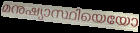
മനുഷ്യാസ്ഥിയെയോ